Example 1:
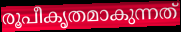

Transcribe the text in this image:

രൂപീകൃതമാകുന്നത്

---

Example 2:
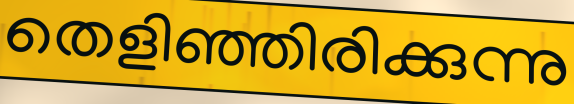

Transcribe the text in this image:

തെളിഞ്ഞിരിക്കുന്നു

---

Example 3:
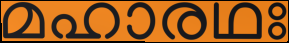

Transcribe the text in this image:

മഹാരഥഃ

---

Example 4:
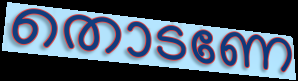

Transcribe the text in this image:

തൊടണേ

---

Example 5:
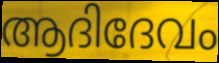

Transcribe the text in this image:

ആദിദേവം